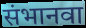
संभानवा